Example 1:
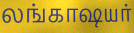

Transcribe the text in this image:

லங்காஷயர்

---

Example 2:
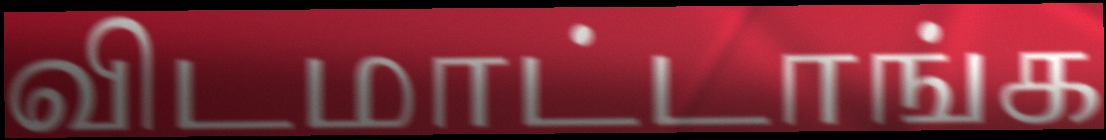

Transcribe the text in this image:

விடமாட்டாங்க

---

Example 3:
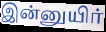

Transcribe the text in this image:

இன்னுயிர்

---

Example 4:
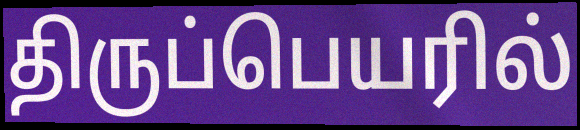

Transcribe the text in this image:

திருப்பெயரில்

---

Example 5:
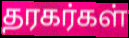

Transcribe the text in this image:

தரகர்கள்